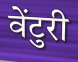
वेंटुरी